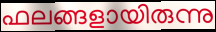
ഫലങ്ങളായിരുന്നു